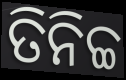
ତିନିଚ୍ଚ